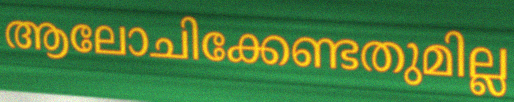
ആലോചിക്കേണ്ടതുമില്ല